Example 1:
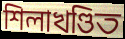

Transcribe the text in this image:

শিলাখণ্ডিত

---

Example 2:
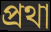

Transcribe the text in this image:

প্ৰথা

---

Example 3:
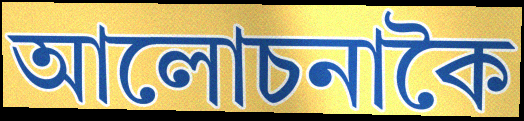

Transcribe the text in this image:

আলোচনাকৈ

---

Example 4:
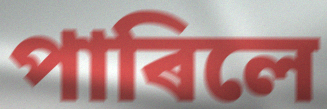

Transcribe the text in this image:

পাৰিলে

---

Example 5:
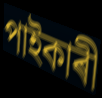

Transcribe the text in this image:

পাইকাৰী